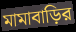
মামাবাড়ির